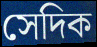
সেদিক